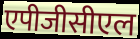
एपीजीसीएल